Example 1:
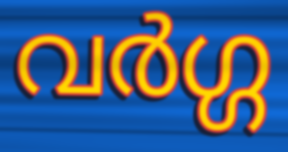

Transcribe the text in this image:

വർഗ്ഗ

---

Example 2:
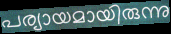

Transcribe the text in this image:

പര്യായമായിരുന്നു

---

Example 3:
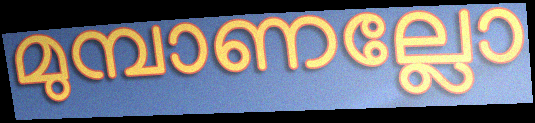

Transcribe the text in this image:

മുമ്പാണല്ലോ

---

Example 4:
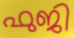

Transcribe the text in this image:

ഫുജി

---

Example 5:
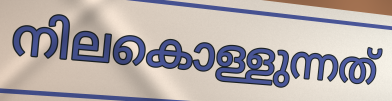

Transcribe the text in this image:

നിലകൊള്ളുന്നത്